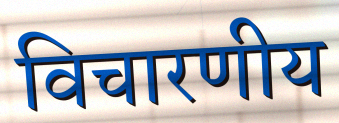
विचारणीय